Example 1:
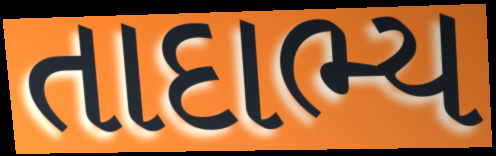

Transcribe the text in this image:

તાદાભ્ય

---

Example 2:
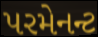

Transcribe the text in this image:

પરમેનન્ટ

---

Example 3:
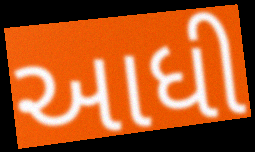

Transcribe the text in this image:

આધી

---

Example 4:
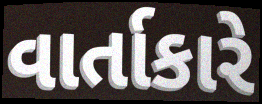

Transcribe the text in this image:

વાર્તાકારે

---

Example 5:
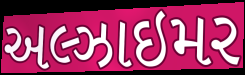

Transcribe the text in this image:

અલ્ઝાઇમર